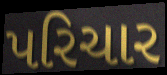
પરિચાર